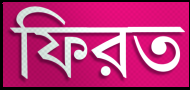
ফিরত